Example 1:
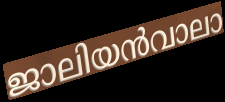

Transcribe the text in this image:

ജാലിയൻവാലാ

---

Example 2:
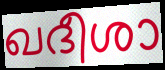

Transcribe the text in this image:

ഖദീശാ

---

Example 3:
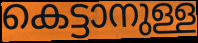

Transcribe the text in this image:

കെട്ടാനുള്ള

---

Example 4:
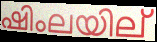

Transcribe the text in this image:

ഷിംലയില്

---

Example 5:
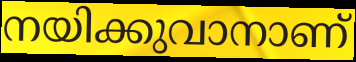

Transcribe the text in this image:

നയിക്കുവാനാണ്